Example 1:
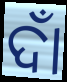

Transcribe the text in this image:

ଦାଁ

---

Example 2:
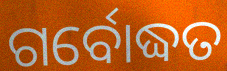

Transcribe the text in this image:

ଗର୍ବୋଦ୍ଧତ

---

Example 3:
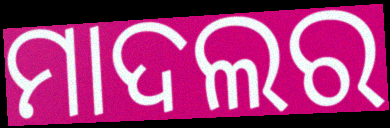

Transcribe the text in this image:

ମାଦଲର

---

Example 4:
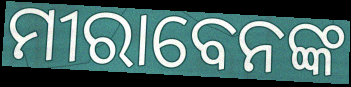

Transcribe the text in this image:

ମୀରାବେନଙ୍କ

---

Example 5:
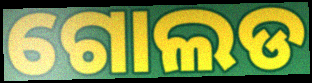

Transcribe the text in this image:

ଗୋଲଡ